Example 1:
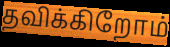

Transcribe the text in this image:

தவிக்கிறோம்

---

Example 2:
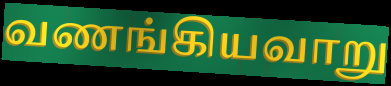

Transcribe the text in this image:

வணங்கியவாறு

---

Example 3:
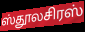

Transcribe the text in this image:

ஸ்தூலசிரஸ்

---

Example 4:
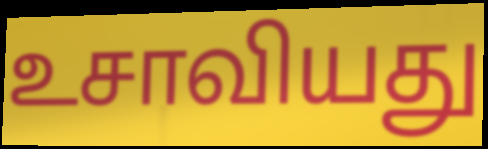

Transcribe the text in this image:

உசாவியது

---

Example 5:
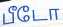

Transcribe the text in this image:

பீடோ